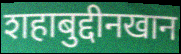
शहाबुद्दीनखान